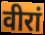
वीरां